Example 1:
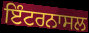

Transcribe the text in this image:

ਇੰਟਰਨਾਸਲ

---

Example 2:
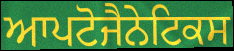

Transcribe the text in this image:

ਆਪਟੋਜੈਨੇਟਿਕਸ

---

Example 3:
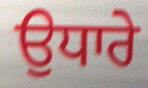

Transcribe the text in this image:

ਉਧਾਰੇ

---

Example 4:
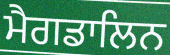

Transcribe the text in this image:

ਮੈਗਡਾਲਿਨ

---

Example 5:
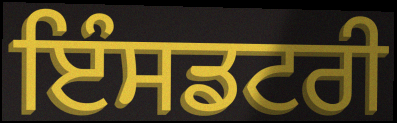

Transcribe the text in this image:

ਇੰਸਡਟਰੀ